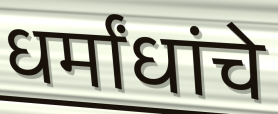
धर्मांधांचे